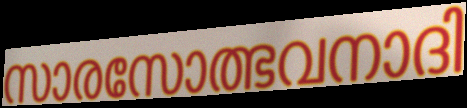
സാരസോത്ഭവനാദി